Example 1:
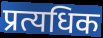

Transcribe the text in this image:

प्रत्यधिक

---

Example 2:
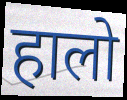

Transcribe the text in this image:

हालो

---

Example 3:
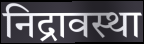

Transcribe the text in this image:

निद्रावस्था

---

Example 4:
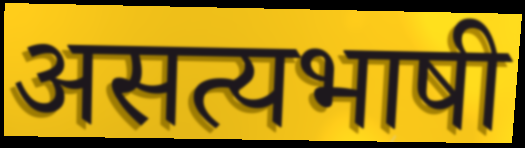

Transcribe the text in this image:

असत्यभाषी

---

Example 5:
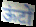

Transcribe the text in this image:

ऊंटों